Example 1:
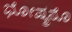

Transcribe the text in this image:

ಭೋಷ್ಮನೊ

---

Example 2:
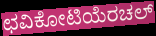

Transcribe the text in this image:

ಛವಿಕೋಟಿಯೆರಚಲ್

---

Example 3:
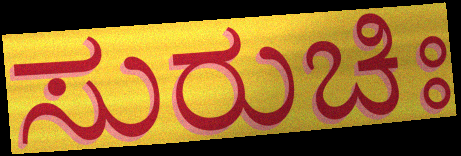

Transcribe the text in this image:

ಸುರುಚಿಃ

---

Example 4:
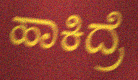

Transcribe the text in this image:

ಹಾಕಿದ್ರೆ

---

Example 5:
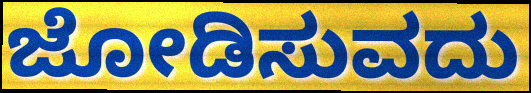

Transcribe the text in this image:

ಜೋಡಿಸುವದು